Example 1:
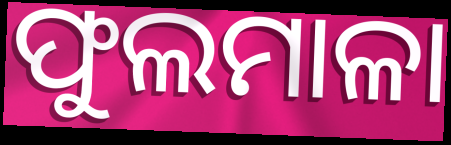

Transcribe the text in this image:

ଫୁଲମାଳା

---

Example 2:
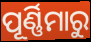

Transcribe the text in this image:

ପୂର୍ଣ୍ଣିମାରୁ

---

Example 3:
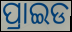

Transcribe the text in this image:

ପ୍ରାଇଡ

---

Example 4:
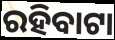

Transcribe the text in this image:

ରହିବାଟା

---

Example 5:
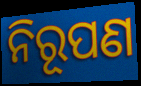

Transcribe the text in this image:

ନିରୂପଣ